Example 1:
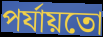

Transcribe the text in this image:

পৰ্যায়তো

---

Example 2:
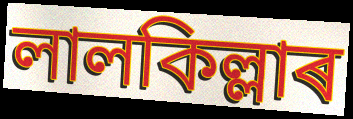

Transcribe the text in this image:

লালকিল্লাৰ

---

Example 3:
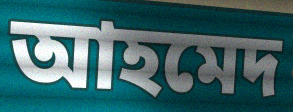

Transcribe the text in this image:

আহমেদ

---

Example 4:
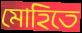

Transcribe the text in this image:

মোহিতে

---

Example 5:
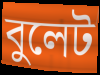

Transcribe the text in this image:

বুলেট